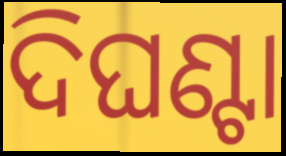
ଦିଘଣ୍ଟା